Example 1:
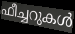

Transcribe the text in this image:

ഫീച്ചറുകൾ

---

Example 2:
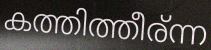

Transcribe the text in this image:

കത്തിത്തീര്ന്ന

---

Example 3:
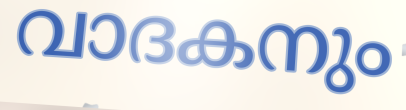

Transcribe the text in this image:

വാദകനും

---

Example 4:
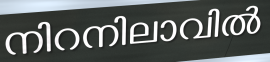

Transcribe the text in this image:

നിറനിലാവിൽ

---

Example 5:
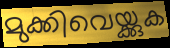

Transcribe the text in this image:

മുക്കിവെയ്ക്കുക